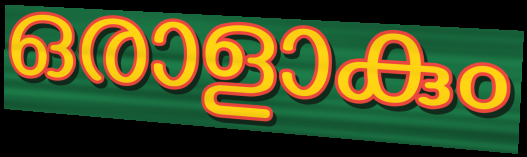
ഒരാളാകും